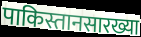
पाकिस्तानसारख्या